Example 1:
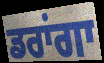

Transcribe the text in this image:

ਡਰਾਂਗਾ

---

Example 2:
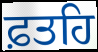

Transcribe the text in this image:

ਫ਼ਤਹਿ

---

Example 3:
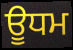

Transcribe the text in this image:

ਊਧਮ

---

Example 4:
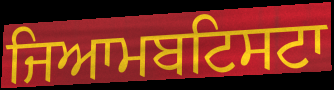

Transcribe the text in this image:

ਜਿਆਮਬਟਿਸਟਾ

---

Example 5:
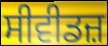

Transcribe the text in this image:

ਸੀਵੀਡਜ਼